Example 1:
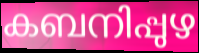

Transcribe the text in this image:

കബനിപ്പുഴ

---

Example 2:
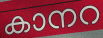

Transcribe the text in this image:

കാനറ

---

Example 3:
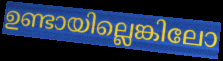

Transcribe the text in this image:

ഉണ്ടായില്ലെങ്കിലോ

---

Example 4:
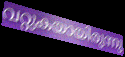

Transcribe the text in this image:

വറ്റുകയായിരുന്നു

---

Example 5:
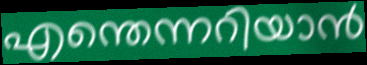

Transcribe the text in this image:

എന്തെന്നറിയാൻ